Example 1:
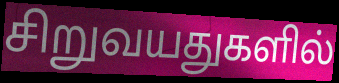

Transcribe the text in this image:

சிறுவயதுகளில்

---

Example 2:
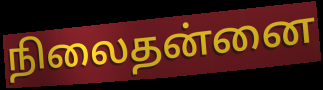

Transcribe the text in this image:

நிலைதன்னை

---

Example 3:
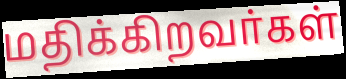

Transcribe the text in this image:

மதிக்கிறவர்கள்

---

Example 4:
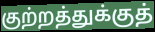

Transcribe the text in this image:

குற்றத்துக்குத்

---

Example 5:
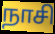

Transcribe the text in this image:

நாசி